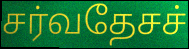
சர்வதேசச்